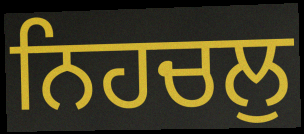
ਨਿਹਚਲੁ